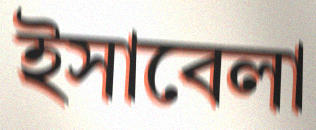
ইসাবেলা